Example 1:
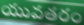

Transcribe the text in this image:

యువతరం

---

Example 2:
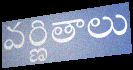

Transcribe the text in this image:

వర్ణితాలు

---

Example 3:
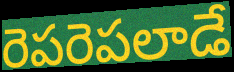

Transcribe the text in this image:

రెపరెపలాడే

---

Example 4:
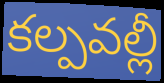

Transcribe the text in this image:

కల్పవల్లీ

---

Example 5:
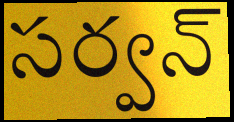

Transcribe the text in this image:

సర్వన్